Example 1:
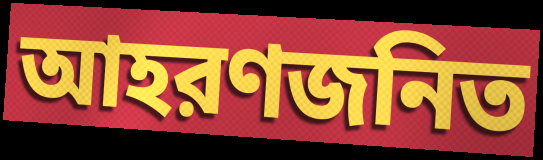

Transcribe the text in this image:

আহরণজনিত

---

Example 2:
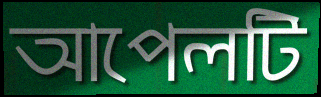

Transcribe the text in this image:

আপেলটি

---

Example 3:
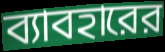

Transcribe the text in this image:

ব্যাবহারের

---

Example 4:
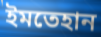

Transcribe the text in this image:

ইমতেহান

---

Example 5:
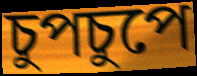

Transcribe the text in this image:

চুপচুপে